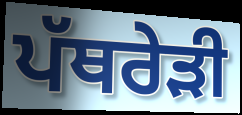
ਪੱਥਰੇੜੀ